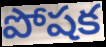
పోషక